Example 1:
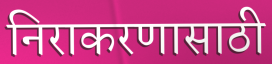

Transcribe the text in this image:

निराकरणासाठी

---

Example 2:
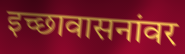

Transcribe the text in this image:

इच्छावासनांवर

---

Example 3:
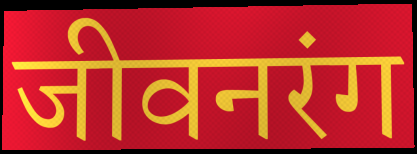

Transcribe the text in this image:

जीवनरंग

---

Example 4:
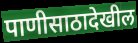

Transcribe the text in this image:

पाणीसाठादेखील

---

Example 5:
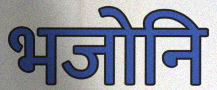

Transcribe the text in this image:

भजोनि